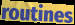
routines